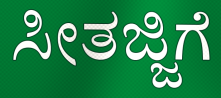
ಸೀತಜ್ಜಿಗೆ